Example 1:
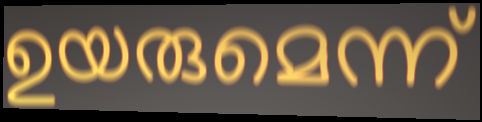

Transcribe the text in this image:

ഉയരുമെന്ന്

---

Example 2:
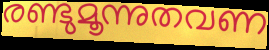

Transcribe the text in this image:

രണ്ടുമൂന്നുതവണ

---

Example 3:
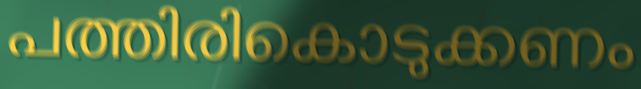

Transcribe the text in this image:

പത്തിരികൊടുക്കണം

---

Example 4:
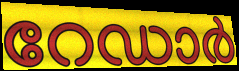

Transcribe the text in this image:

റേഡാർ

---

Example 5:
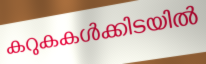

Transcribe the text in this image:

കറുകകൾക്കിടയിൽ